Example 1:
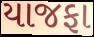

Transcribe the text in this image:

યાજફા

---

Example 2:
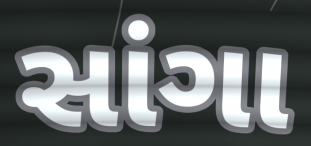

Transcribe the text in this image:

સાંગા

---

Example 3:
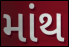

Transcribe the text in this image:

માંથ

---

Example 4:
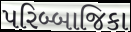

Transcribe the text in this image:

પરિબ્બાજિકા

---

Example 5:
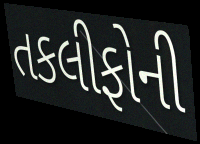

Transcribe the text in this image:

તકલીફોની